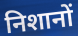
निशानों